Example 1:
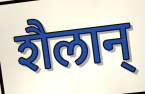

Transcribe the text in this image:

शैलान्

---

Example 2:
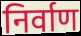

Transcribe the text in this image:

निर्वाण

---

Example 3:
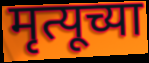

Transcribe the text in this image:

मृत्यूच्या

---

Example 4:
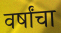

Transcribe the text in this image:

वर्षांचा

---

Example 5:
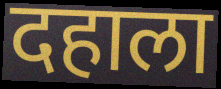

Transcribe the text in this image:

दहाला